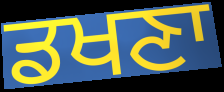
ਡਖਣਾ